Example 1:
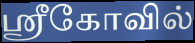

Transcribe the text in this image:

ஸ்ரீகோவில்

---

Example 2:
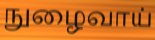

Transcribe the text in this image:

நுழைவாய்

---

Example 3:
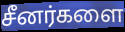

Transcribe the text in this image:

சீனர்களை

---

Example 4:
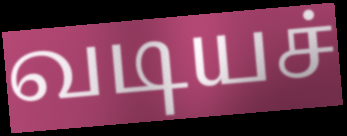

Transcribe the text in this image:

வடியச்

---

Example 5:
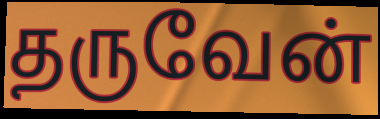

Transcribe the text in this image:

தருவேன்